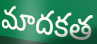
మాదకత